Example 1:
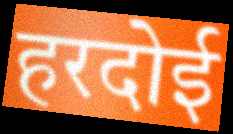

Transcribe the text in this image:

हरदोई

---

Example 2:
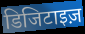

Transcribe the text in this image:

डिजिटाइज़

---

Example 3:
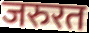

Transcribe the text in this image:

जरुरत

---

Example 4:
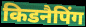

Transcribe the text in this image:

किडनैपिंग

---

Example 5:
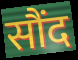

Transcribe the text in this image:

सौंद